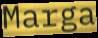
Marga